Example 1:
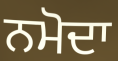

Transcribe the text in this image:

ਨਮੋਦਾ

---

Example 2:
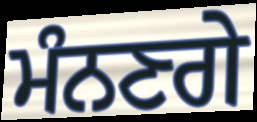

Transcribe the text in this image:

ਮੰਨਣਗੇ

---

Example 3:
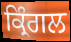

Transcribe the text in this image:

ਕ੍ਰਿੰਗਲ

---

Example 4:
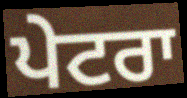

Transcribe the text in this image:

ਪੇਟਰਾ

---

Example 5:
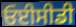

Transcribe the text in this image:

ਓਈਸੀਡੀ